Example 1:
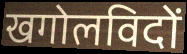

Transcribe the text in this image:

खगोलविदों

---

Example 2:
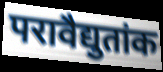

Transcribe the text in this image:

परावैद्युतांक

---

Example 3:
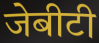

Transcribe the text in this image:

जेबीटी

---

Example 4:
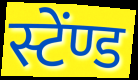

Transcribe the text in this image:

स्टेंण्ड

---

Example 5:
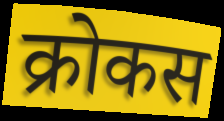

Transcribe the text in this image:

क्रोकस